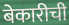
बेकारीची